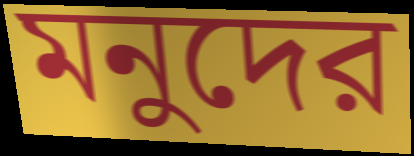
মনুদের